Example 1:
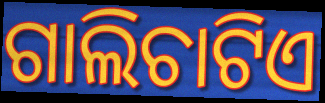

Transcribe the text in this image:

ଗାଲିଚାଟିଏ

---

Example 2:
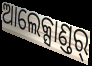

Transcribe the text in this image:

ଆଲେକ୍ସାଣ୍ଡର୍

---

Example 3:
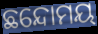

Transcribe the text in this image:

ଛନ୍ଦୋମୟ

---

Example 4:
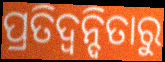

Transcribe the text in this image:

ପ୍ରତିଦ୍ୱନ୍ଦିତାରୁ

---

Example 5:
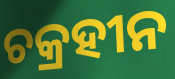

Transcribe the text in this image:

ଚକ୍ରହୀନ